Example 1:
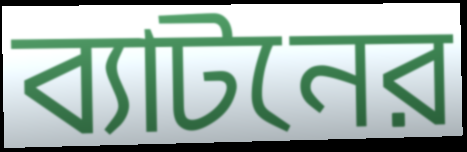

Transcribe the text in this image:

ব্যাটনের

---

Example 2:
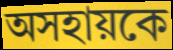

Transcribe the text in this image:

অসহায়কে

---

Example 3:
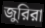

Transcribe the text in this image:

জুরিরা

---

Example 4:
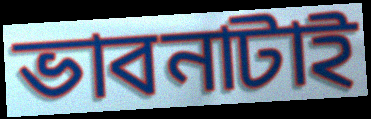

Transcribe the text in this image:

ভাবনাটাই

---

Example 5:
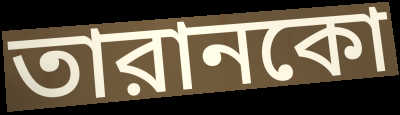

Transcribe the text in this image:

তারানকো